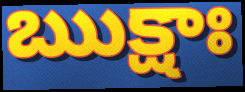
ఋక్షాః